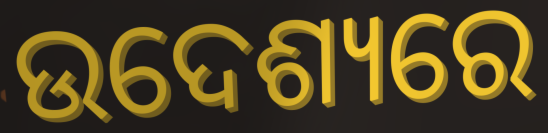
ଉଦେଶ୍ୟରେ